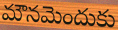
మౌనమెందుకు